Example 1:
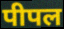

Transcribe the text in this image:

पीपल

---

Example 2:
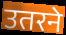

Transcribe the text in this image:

उतरने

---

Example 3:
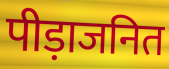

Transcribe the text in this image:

पीड़ाजनित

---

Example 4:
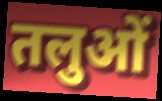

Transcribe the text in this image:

तलुओं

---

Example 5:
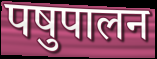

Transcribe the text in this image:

पषुपालन